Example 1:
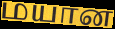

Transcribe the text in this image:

மயான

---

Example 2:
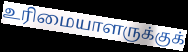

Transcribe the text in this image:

உரிமையாளருக்குக்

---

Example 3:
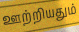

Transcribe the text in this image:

ஊற்றியதும்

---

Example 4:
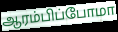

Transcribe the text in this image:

ஆரம்பிப்போமா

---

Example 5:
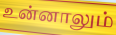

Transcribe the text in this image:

உன்னாலும்